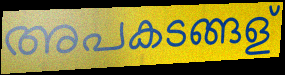
അപകടങ്ങള്